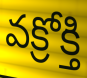
వక్రోక్తి